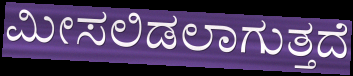
ಮೀಸಲಿಡಲಾಗುತ್ತದೆ